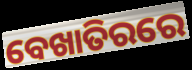
ବେଖାତିରରେ